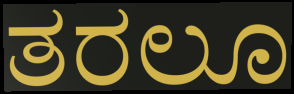
ತರಲೂ